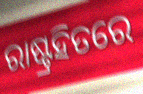
ରାଷ୍ଟ୍ରହିତରେ